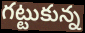
గట్టుకున్న